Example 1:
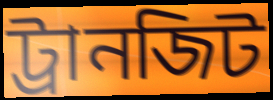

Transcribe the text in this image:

ট্রানজিট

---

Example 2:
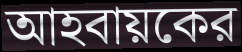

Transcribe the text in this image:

আহবায়কের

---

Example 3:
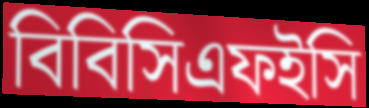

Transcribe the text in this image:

বিবিসিএফইসি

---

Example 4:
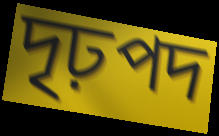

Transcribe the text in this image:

দৃঢ়পদ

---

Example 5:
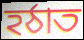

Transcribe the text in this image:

হঠাত